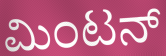
ಮಿಂಟನ್